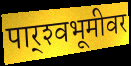
पार्श्वभूमीवर